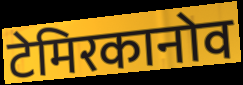
टेमिरकानोव